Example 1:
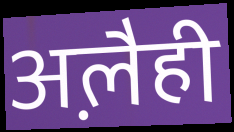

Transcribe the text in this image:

अ़लैही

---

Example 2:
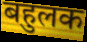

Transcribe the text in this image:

बहुलक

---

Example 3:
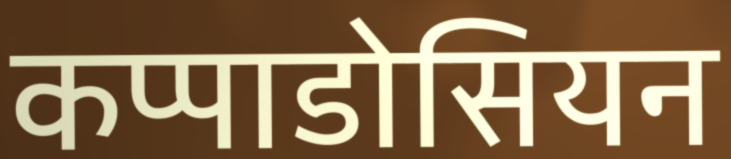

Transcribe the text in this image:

कप्पाडोसियन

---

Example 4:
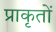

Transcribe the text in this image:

प्राकृतों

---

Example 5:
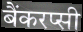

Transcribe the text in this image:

बैंकरप्सी